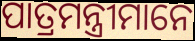
ପାତ୍ରମନ୍ତ୍ରୀମାନେ